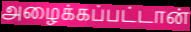
அழைக்கப்பட்டான்